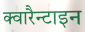
क्वारैन्टाइन